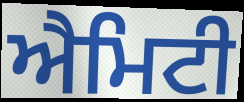
ਐਮਿਟੀ